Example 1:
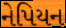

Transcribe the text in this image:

નેપિયન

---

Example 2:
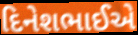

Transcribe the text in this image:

દિનેશભાઈએ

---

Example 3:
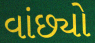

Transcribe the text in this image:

વાંછ્યો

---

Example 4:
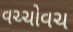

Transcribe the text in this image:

વચ્ચોવચ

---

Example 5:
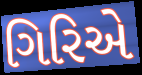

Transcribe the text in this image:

ગિરિએ